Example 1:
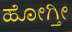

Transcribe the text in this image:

ಹೋಗ್ತೀ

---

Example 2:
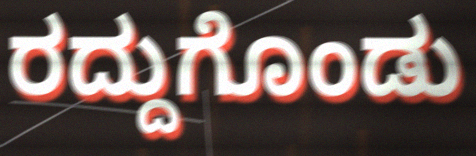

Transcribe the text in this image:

ರದ್ದುಗೊಂಡು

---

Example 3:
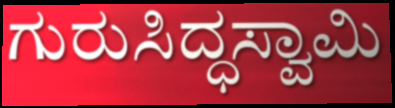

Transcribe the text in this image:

ಗುರುಸಿದ್ಧಸ್ವಾಮಿ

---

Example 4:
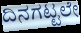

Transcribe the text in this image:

ದಿನಗಟ್ಟಲೇ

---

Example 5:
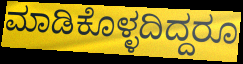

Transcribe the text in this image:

ಮಾಡಿಕೊಳ್ಳದಿದ್ದರೂ